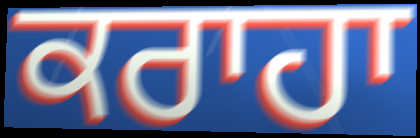
ਕਰਾਹਾ